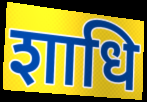
शाधि